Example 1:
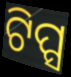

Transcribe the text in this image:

ଟିପ୍ସ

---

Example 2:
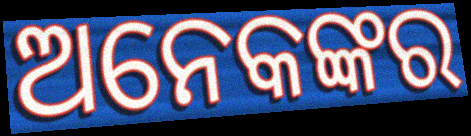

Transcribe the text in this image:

ଅନେକଙ୍କର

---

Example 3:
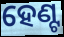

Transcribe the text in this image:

ହେଣ୍ଟ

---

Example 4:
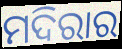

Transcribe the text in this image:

ମଦିରାର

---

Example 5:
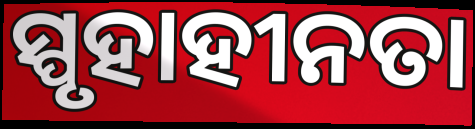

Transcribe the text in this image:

ସ୍ପୃହାହୀନତା